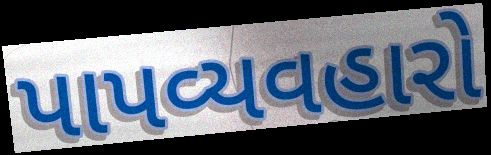
પાપવ્યવહારો